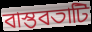
বাস্তবতাটি